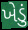
ખેડું